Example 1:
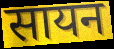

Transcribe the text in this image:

सायन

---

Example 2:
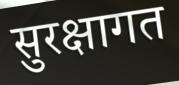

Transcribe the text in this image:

सुरक्षागत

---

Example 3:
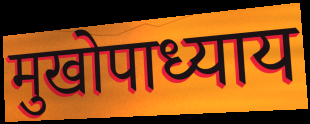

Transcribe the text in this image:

मुखोपाध्याय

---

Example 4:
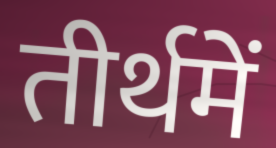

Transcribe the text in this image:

तीर्थमें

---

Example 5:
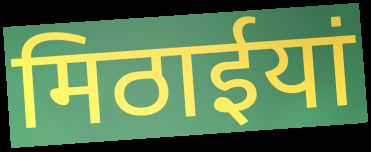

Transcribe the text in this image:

मिठाईयां